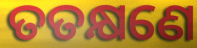
ତତକ୍ଷଣେ